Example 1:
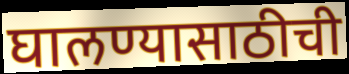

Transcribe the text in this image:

घालण्यासाठीची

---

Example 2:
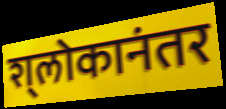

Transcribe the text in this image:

श्लोकानंतर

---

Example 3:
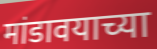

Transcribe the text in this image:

मांडावयाच्या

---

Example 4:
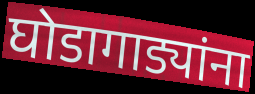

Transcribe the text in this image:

घोडागाड्यांना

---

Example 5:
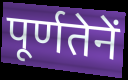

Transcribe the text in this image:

पूर्णतेनें